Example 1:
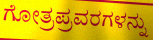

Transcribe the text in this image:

ಗೋತ್ರಪ್ರವರಗಳನ್ನು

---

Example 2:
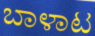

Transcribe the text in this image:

ಬಾಳಾಟ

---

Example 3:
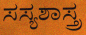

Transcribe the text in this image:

ಸಸ್ಯಶಾಸ್ತ್ರ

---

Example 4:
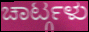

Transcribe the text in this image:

ಚಾರ್ಟ್ಗಳು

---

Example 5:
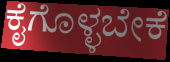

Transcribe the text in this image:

ಕೈಗೊಳ್ಳಬೇಕೆ